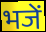
भजें